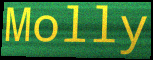
Molly